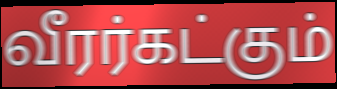
வீரர்கட்கும்